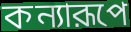
কন্যারূপে